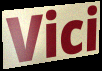
Vici